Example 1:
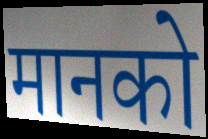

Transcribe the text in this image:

मानको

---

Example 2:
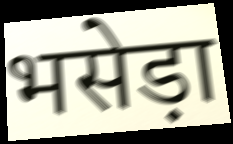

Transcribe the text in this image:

भसेड़ा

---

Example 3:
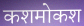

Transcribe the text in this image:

कशमोकश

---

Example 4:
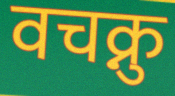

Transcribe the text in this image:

वचक्नु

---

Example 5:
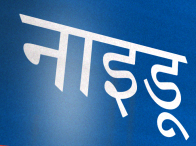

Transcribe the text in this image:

नाइडू